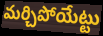
మర్చిపోయేట్టు